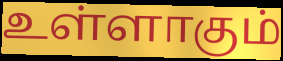
உள்ளாகும்